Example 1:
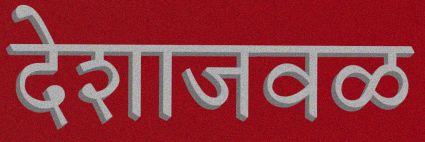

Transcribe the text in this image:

देशाजवळ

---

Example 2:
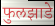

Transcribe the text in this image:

फुलझाडे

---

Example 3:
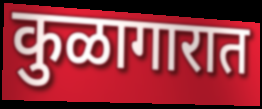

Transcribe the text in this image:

कुळागारात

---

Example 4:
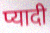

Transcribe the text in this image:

प्यादी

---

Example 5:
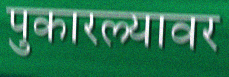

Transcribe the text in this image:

पुकारल्यावर